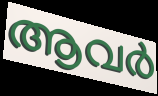
ആവർ